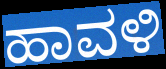
ಹಾವಳಿ